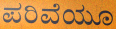
ಪರಿವೆಯೂ